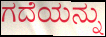
ಗದೆಯನ್ನು